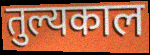
तुल्यकाल